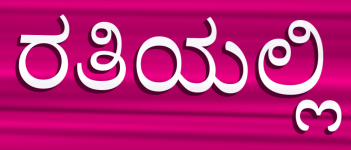
ರತಿಯಲ್ಲಿ